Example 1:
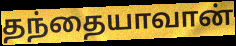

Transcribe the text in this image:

தந்தையாவான்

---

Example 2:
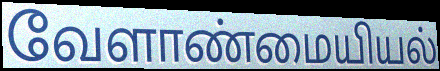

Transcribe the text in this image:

வேளாண்மையியல்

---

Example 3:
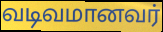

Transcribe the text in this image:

வடிவமானவர்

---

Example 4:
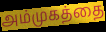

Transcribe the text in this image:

அம்முகத்தை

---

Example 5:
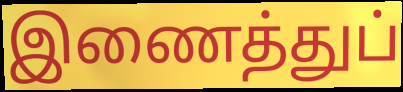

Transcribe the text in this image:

இணைத்துப்